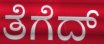
ತೆಗೆದ್